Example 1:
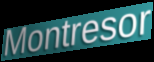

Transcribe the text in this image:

Montresor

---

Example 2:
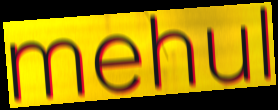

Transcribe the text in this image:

mehul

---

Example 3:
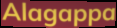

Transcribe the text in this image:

Alagappa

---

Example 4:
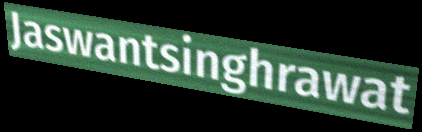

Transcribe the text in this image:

Jaswantsinghrawat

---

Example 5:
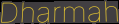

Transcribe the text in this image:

Dharmah